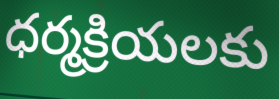
ధర్మక్రియలకు